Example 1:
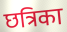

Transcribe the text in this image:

छत्रिका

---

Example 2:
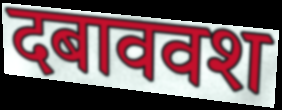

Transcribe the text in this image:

दबाववश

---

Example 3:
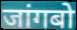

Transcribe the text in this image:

जांगबो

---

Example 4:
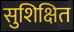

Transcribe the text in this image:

सुशिक्षित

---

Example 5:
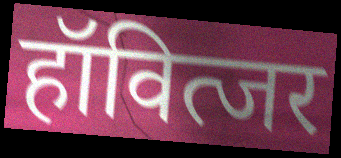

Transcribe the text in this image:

हॉवित्जर